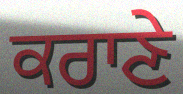
ਕਰਾਣੇ